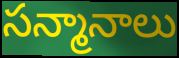
సన్మానాలు